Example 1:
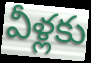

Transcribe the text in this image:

వీళ్లకు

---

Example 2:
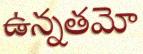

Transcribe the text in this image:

ఉన్నతమో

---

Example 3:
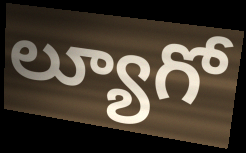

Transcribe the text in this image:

ల్యూగో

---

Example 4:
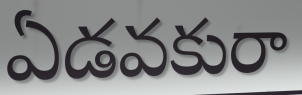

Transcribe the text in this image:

ఏడవకురా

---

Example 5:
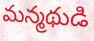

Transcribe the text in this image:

మన్మథుడి